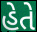
હેતે